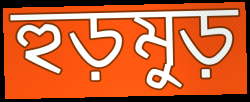
হুড়মুড়